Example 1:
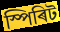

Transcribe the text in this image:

স্পিৰিট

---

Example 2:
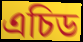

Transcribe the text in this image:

এচিড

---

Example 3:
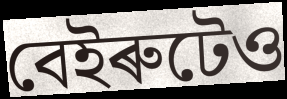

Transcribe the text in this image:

বেইৰুটেও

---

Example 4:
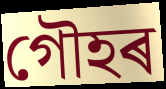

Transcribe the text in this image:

গৌহৰ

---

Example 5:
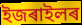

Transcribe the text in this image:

ইজৰাইলৰ